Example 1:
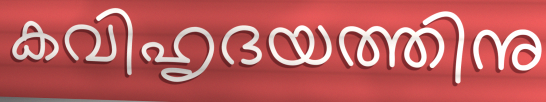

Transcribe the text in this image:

കവിഹൃദയത്തിനു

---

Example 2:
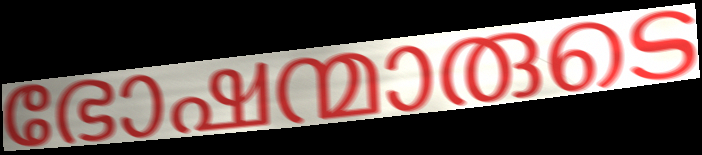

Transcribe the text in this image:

ഭോഷന്മാരുടെ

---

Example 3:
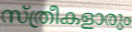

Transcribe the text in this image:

സ്ത്രീകളാരും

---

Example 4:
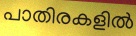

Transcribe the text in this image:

പാതിരകളിൽ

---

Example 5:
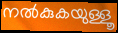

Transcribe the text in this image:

നൽകുകയുള്ളൂ